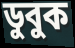
ডুবুক